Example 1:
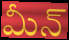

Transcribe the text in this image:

మీన్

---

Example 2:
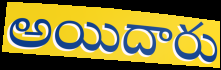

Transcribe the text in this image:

అయిదారు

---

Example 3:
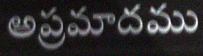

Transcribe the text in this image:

అప్రమాదము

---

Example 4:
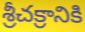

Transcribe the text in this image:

శ్రీచక్రానికి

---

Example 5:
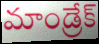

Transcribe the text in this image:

మాండ్రేక్